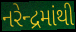
નરેન્દ્રમાંથી